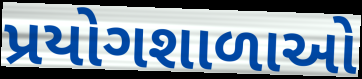
પ્રયોગશાળાઓ